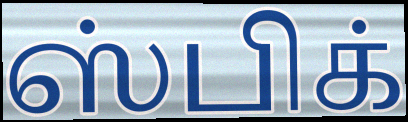
ஸ்பிக்